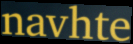
navhte